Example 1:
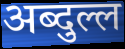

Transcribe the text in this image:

अब्दुल्ल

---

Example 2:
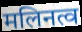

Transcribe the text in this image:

मलिनत्व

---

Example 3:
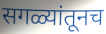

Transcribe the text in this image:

सगळ्यांतूनच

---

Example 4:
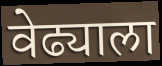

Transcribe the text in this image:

वेढ्याला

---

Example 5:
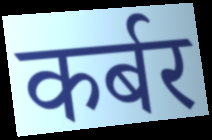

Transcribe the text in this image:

कर्बर